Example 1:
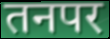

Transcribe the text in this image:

तनपर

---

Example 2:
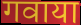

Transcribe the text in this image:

गवाया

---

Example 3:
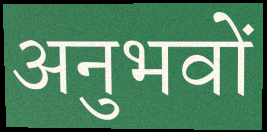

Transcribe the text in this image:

अनुभवों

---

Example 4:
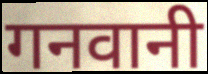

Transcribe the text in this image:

गनवानी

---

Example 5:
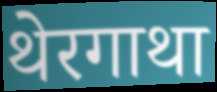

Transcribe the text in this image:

थेरगाथा